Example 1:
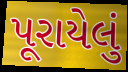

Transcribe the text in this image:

પૂરાયેલું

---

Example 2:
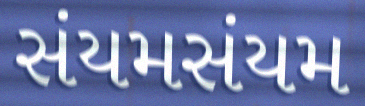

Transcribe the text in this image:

સંયમસંયમ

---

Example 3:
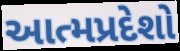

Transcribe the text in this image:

આત્મપ્રદેશો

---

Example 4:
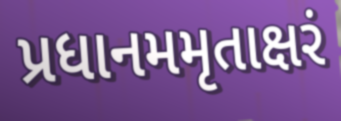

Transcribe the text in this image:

પ્રધાનમમૃતાક્ષરં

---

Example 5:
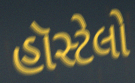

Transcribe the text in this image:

હૉસ્ટેલો